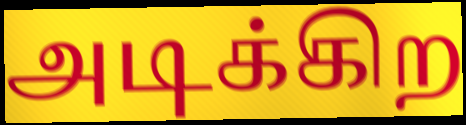
அடிக்கிற